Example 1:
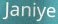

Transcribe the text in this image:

Janiye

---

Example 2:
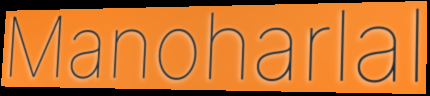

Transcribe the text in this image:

Manoharlal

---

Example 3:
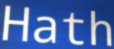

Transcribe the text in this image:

Hath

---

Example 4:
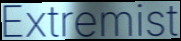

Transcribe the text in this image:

Extremist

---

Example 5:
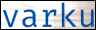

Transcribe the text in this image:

varku